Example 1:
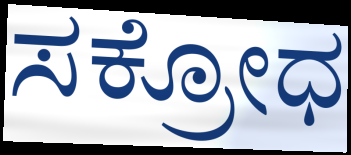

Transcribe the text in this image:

ಸಕ್ರೋಧ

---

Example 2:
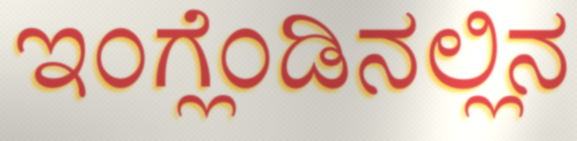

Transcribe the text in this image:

ಇಂಗ್ಲೆಂಡಿನಲ್ಲಿನ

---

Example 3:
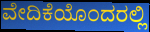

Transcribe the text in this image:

ವೇದಿಕೆಯೊಂದರಲ್ಲಿ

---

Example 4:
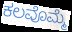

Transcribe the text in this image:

ಕಲವೊಮ್ಮೆ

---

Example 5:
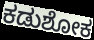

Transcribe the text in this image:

ಕಡುಶೋಕ